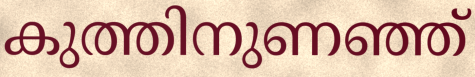
കുത്തിനുണഞ്ഞ്